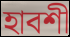
হাবশী